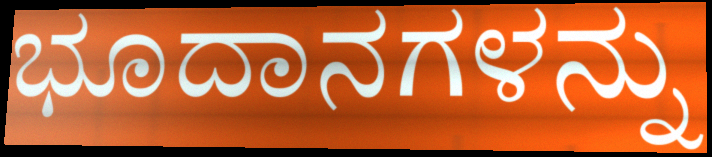
ಭೂದಾನಗಳನ್ನು